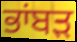
ਭਾਂਬੜ